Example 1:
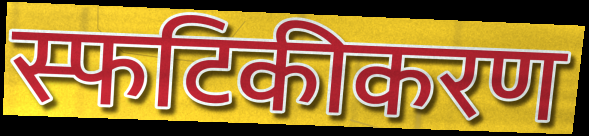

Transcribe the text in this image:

स्फटिकीकरण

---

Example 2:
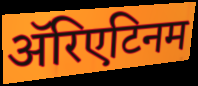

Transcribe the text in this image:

ॲरिएटिनम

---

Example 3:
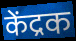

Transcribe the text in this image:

केंद्रक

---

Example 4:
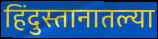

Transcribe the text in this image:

हिंदुस्तानातल्या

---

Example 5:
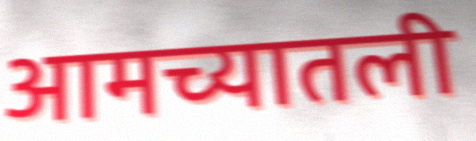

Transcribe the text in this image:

आमच्यातली